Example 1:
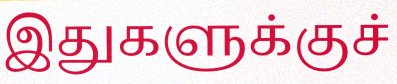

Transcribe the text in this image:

இதுகளுக்குச்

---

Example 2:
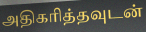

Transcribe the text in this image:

அதிகரித்தவுடன்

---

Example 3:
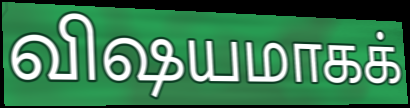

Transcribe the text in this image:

விஷயமாகக்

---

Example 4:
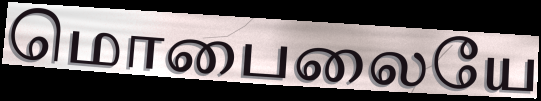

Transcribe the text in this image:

மொபைலையே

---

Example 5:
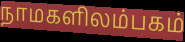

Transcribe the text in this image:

நாமகளிலம்பகம்